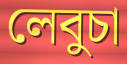
লেবুচা